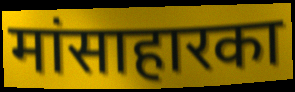
मांसाहारका